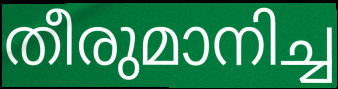
തീരുമാനിച്ച